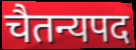
चैतन्यपद